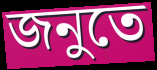
জনুতে